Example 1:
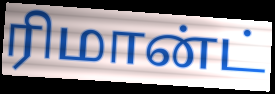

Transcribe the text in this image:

ரிமான்ட்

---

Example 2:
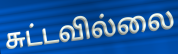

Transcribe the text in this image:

சுட்டவில்லை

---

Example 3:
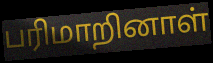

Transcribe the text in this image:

பரிமாறினாள்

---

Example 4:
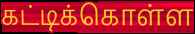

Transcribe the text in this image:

கட்டிக்கொள்ள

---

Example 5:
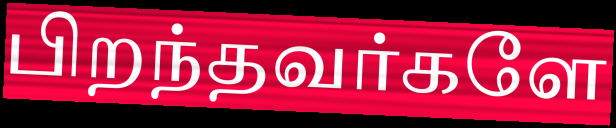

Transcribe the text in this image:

பிறந்தவர்களே